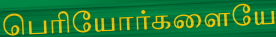
பெரியோர்களையே